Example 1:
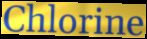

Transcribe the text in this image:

Chlorine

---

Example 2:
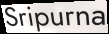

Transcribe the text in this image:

Sripurna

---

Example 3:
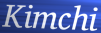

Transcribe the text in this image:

Kimchi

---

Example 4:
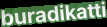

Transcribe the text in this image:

buradikatti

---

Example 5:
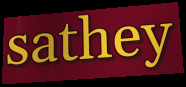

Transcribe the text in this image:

sathey